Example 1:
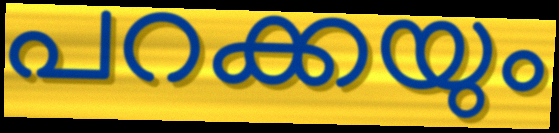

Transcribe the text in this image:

പറക്കയും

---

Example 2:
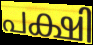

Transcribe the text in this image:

പക്ഷി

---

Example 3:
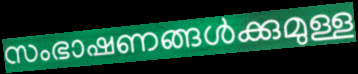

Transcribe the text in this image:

സംഭാഷണങ്ങൾക്കുമുള്ള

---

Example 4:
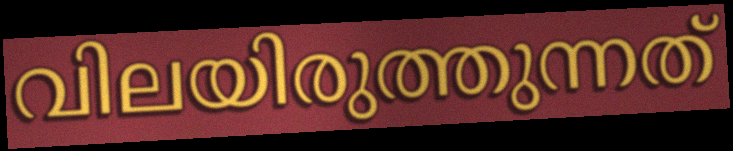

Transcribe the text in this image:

വിലയിരുത്തുന്നത്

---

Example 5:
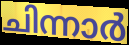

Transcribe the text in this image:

ചിന്നാർ